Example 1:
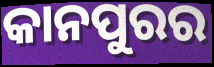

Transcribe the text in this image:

କାନପୁରର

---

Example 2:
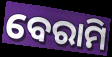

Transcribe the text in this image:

ବେରାମି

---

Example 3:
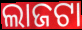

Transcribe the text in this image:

ଲାଜଟା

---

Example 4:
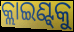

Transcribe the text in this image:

କ୍ଲାଇଣ୍ଟ୍‌କୁ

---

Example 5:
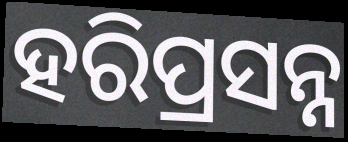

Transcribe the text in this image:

ହରିପ୍ରସନ୍ନ